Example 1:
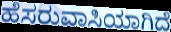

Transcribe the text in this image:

ಹೆಸರುವಾಸಿಯಾಗಿದೆ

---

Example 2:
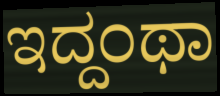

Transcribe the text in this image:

ಇದ್ದಂಥಾ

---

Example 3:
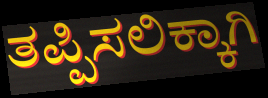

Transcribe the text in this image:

ತಪ್ಪಿಸಲಿಕ್ಕಾಗಿ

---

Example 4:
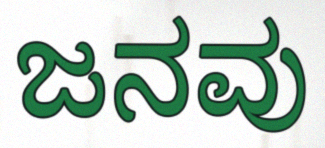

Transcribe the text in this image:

ಜನವು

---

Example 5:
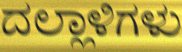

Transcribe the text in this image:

ದಲ್ಲಾಳಿಗಳು